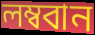
লম্ববান